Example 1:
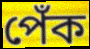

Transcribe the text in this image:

পেঁক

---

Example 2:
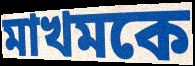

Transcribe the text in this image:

মাখমকে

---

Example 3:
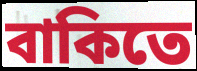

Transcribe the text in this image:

বাকিতে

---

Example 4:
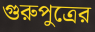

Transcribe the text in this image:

গুরুপুত্রের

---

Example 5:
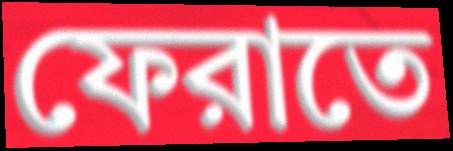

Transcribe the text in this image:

ফেরাতে